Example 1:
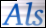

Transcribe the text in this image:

Als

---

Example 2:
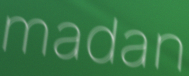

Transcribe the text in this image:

madan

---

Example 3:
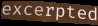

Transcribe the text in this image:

excerpted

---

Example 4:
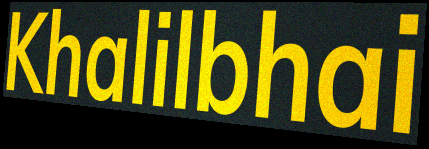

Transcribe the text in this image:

Khalilbhai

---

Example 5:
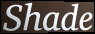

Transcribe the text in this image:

Shade